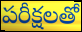
పరీక్షలతో